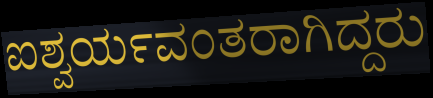
ಐಶ್ವರ್ಯವಂತರಾಗಿದ್ದರು